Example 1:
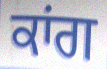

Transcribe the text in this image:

ਕਾਂਗ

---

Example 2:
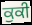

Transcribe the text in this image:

ਕੁਕੀ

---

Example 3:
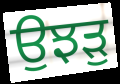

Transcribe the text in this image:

ਉਝੜੁ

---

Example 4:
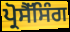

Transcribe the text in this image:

ਪ੍ਰੋਸੈੱਸਿੰਗ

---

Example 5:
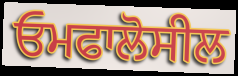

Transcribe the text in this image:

ਓਮਫਾਲੋਸੀਲ